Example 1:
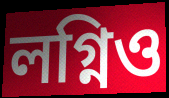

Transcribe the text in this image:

লগ্নিও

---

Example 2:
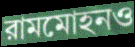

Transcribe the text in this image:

রামমোহনও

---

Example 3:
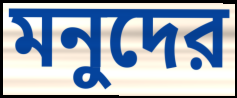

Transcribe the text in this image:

মনুদের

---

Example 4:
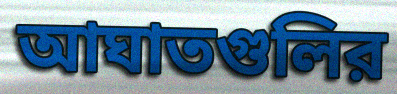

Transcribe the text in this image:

আঘাতগুলির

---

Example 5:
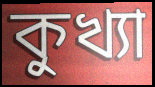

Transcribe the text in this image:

কুখ্যা